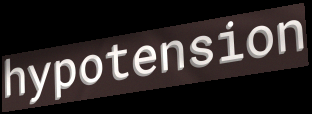
hypotension